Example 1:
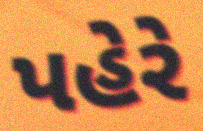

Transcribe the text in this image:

પહેરે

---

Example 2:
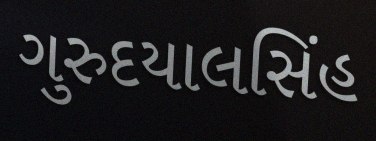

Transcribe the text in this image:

ગુરુદયાલસિંહ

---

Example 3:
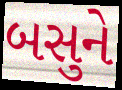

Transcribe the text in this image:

બસુને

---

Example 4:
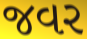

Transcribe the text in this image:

જવર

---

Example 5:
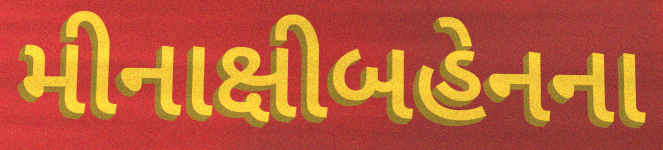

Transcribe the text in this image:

મીનાક્ષીબહેનના